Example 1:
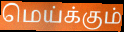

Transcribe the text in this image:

மெய்க்கும்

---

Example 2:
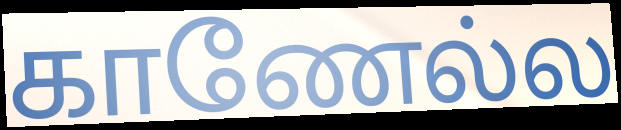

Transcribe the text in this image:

காணேல்ல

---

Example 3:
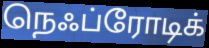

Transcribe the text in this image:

நெஃப்ரோடிக்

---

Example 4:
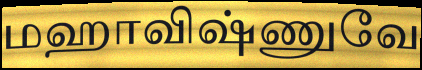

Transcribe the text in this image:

மஹாவிஷ்ணுவே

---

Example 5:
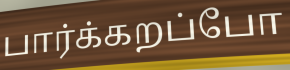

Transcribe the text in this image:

பார்க்கறப்போ